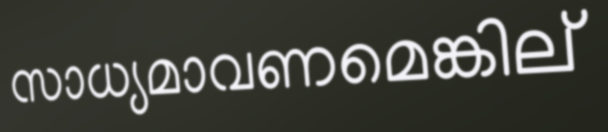
സാധ്യമാവണമെങ്കില്